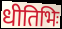
धीतिभिः